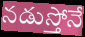
నడుస్తోనే